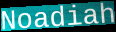
Noadiah